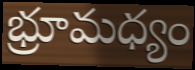
భ్రూమధ్యం